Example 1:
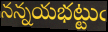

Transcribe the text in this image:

నన్నయభట్టుఁ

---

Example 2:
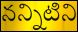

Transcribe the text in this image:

నన్నిటిని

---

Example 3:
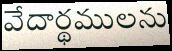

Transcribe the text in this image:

వేదార్థములను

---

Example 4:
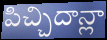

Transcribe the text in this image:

పిచ్చిదాన్లా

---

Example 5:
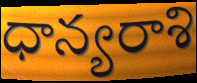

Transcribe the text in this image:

ధాన్యరాశి